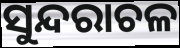
ସୁନ୍ଦରାଚଳ